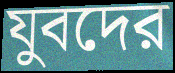
যুবদের